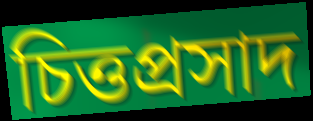
চিত্তপ্রসাদ